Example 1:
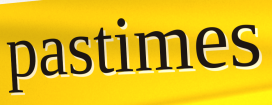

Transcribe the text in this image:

pastimes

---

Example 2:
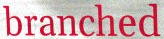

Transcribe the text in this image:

branched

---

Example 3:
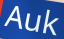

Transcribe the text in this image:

Auk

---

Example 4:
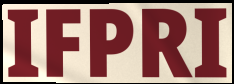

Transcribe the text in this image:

IFPRI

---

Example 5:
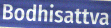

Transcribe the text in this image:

Bodhisattva